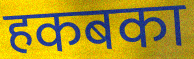
हकबका